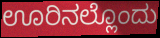
ಊರಿನಲ್ಲೊಂದು